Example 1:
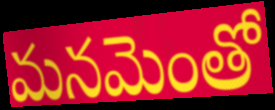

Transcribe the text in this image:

మనమెంతో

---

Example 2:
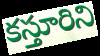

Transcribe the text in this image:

కస్తూరిని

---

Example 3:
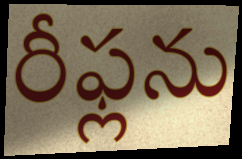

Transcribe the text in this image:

రీఫ్లను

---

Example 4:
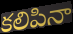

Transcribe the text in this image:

కలిపినా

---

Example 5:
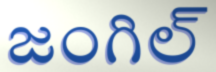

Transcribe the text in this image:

జంగిల్